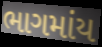
ભાગમાંય